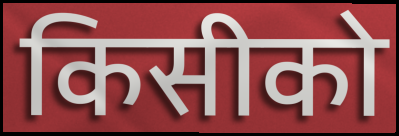
किसीको